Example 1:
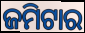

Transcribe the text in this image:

ଜମିଟାର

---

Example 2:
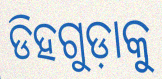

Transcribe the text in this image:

ଡିହଗୁଡ଼ାକୁ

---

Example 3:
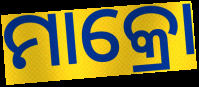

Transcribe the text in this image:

ମାକ୍ରୋ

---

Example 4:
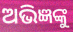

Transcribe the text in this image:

ଅଭିଜ୍ଞଙ୍କୁ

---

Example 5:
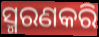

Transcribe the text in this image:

ସ୍ମରଣକରି